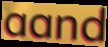
aand